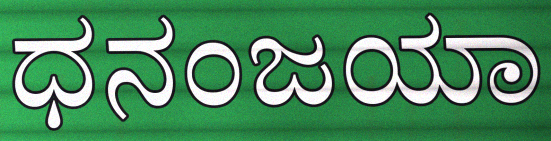
ಧನಂಜಯಾ